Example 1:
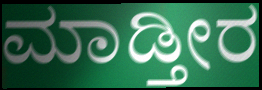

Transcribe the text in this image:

ಮಾಡ್ತೀರ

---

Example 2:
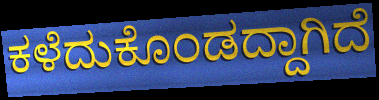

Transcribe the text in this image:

ಕಳೆದುಕೊಂಡದ್ದಾಗಿದೆ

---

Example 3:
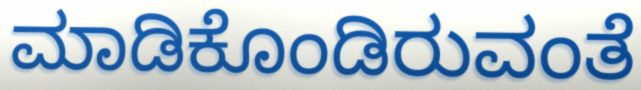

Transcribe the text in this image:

ಮಾಡಿಕೊಂಡಿರುವಂತೆ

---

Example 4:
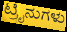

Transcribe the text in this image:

ಟ್ರೈನುಗಳು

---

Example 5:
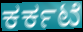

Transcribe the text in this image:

ಕರ್ಕಟೆ